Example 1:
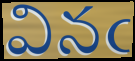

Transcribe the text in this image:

వినఁ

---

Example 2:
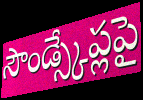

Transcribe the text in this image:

సౌండ్స్కేప్లపై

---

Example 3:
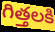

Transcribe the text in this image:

గిత్తలకి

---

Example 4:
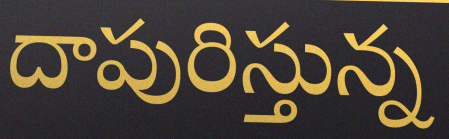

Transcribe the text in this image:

దాపురిస్తున్న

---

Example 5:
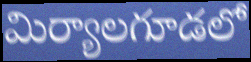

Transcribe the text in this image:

మిర్యాలగూడలో